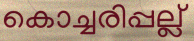
കൊച്ചരിപ്പല്ല്